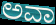
ಅವಾ